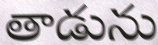
తాడును